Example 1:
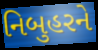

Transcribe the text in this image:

નિબુહરને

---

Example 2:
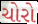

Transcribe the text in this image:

ચોરો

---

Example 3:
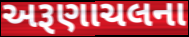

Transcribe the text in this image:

અરૂણાચલના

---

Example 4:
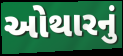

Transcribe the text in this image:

ઓથારનું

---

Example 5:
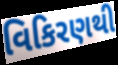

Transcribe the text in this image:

વિકિરણથી